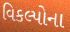
વિકલ્પોના